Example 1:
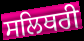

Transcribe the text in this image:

ਸਲਿਥਰੀ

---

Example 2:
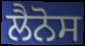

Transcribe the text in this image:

ਲੈਨੋਸ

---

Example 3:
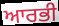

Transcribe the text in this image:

ਆਰਭੀ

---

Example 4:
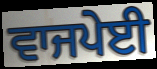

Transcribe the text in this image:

ਵਾਜਪੇਈ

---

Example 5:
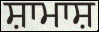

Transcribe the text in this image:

ਸ਼ਾਮਾਸ਼